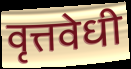
वृत्तवेधी